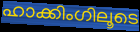
ഹാക്കിംഗിലൂടെ